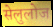
सेलुलोज